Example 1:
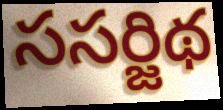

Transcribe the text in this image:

ససర్జిథ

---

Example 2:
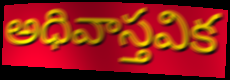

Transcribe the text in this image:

అధివాస్తవిక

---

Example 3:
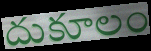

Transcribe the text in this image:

దుకూలం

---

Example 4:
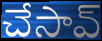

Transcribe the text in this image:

చేసావ్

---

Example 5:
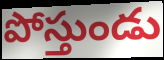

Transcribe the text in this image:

పోస్తుండు